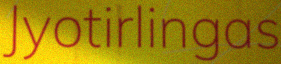
Jyotirlingas